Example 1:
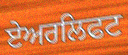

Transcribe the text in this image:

ਏਅਰਲਿਫਟ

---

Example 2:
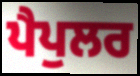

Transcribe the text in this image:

ਪੈਪੁਲਰ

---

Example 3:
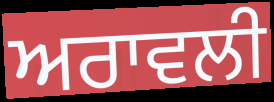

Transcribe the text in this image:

ਅਰਾਵਲੀ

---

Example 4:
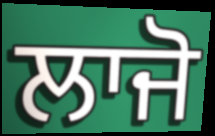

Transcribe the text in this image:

ਲਾਜੋ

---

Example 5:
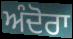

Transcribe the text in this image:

ਅੰਦੋਰਾ